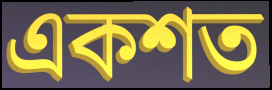
একশত